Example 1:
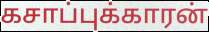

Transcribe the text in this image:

கசாப்புக்காரன்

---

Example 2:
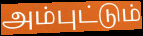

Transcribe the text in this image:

அம்புட்டும்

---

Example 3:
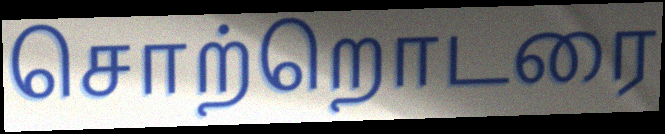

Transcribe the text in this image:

சொற்றொடரை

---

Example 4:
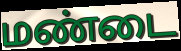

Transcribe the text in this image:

மண்டை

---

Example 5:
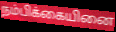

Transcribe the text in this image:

நம்பிக்கையினை